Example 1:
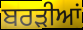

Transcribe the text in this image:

ਬਰੜੀਆਂ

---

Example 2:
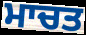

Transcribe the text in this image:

ਮਾਚਤ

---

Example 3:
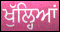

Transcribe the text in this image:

ਖੁੱਲ੍ਹਿਆਂ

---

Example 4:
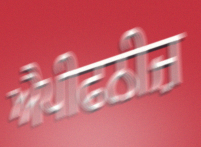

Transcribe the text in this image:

ਐਪੀਫਨੀਜ਼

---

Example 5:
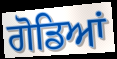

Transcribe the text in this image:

ਗੋਡਿਆਂ